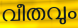
വീതവും